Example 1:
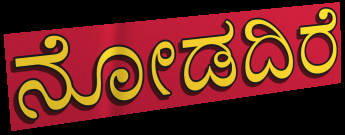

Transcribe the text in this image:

ನೋಡದಿರೆ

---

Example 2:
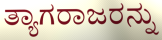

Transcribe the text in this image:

ತ್ಯಾಗರಾಜರನ್ನು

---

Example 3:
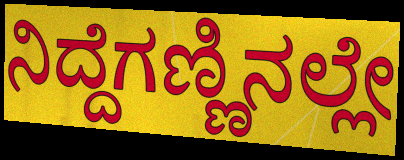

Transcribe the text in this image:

ನಿದ್ದೆಗಣ್ಣಿನಲ್ಲೇ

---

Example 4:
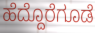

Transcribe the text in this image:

ಹೆದ್ದೊರೆಗೂಡೆ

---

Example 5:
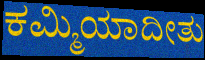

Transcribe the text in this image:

ಕಮ್ಮಿಯಾದೀತು